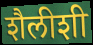
शैलीशी